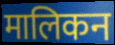
मालिकन